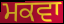
ਮਕਵਾ